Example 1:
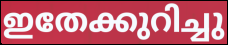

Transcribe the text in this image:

ഇതേക്കുറിച്ചു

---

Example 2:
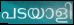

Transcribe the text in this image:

പടയാളി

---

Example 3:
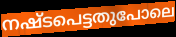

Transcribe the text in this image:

നഷ്ടപെട്ടതുപോലെ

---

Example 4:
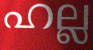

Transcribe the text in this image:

ഹല്ല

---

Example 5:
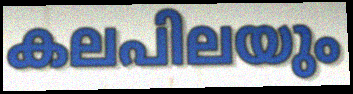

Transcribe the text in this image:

കലപിലയും